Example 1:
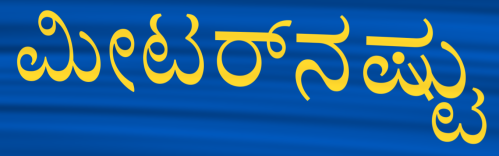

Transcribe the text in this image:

ಮೀಟರ್‌ನಷ್ಟು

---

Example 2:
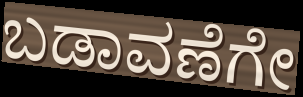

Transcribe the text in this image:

ಬಡಾವಣೆಗೇ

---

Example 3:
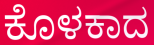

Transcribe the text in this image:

ಕೊಳಕಾದ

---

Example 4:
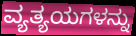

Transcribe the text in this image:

ವ್ಯತ್ಯಯಗಳನ್ನು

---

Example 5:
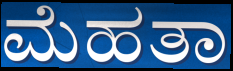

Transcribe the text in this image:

ಮೆಹತಾ